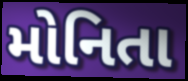
મોનિતા